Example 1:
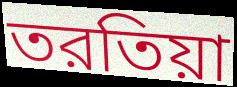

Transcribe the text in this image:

তরতিয়া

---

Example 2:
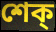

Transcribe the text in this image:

শেক্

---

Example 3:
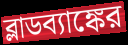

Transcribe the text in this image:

ব্লাডব্যাঙ্কের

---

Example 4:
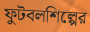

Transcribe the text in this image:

ফুটবলশিল্পের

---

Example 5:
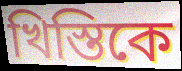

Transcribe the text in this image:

খিস্তিকে